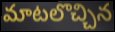
మాటలొచ్చిన